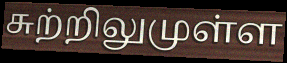
சுற்றிலுமுள்ள